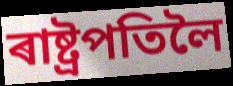
ৰাষ্ট্ৰপতিলৈ